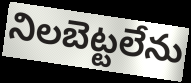
నిలబెట్టలేను